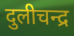
दुलीचन्द्र